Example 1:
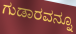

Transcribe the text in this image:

ಗುಡಾರವನ್ನೂ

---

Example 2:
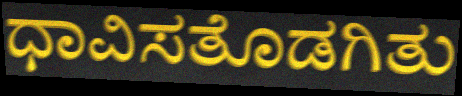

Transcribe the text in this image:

ಧಾವಿಸತೊಡಗಿತು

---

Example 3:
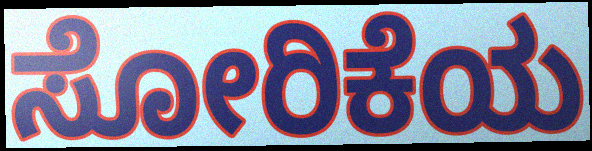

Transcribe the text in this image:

ಸೋರಿಕೆಯ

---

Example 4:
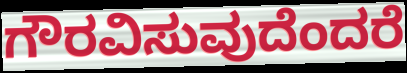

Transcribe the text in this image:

ಗೌರವಿಸುವುದೆಂದರೆ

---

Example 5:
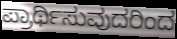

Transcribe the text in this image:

ಪ್ರಾರ್ಥಿಸುವುದರಿಂದ